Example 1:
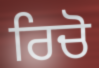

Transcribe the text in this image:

ਰਿਚੋ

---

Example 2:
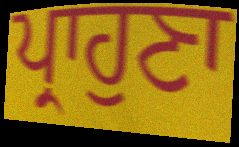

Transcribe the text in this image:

ਪ੍ਰਾਹੁਣਾ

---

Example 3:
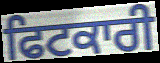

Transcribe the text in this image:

ਫਿਟਕਾਰੀ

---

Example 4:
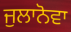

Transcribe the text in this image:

ਜੁਲਾਨੋਵਾ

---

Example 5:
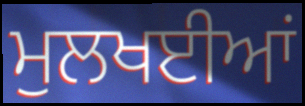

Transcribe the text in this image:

ਮੁਲਖਈਆਂ